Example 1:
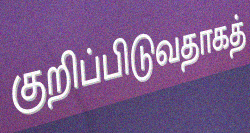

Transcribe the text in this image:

குறிப்பிடுவதாகத்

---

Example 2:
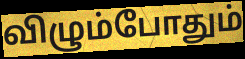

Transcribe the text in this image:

விழும்போதும்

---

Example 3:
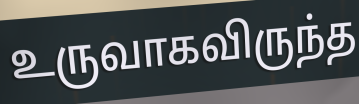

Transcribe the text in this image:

உருவாகவிருந்த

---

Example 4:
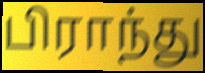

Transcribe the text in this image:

பிராந்து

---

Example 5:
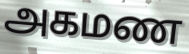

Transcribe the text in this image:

அகமண